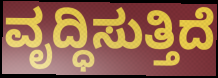
ವೃದ್ಧಿಸುತ್ತಿದೆ